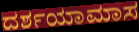
ದರ್ಶಯಾಮಾಸ